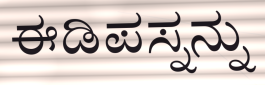
ಈಡಿಪಸ್ನನ್ನು